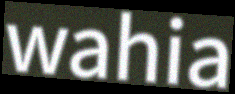
wahia